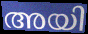
അയി